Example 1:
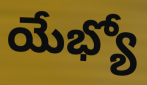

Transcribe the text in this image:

యేభ్యో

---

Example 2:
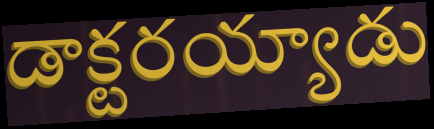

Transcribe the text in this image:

డాక్టరయ్యాడు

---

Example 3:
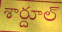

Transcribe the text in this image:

శార్దూల్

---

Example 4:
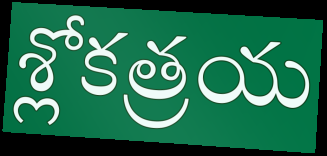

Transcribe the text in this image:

శ్లోకత్రయ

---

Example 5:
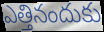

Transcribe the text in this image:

ఎత్తినందుకు